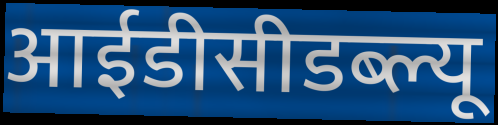
आईडीसीडब्ल्यू